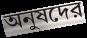
অনুষদের